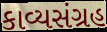
કાવ્યસંગ્રહ